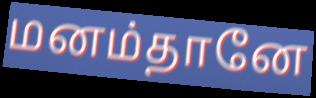
மனம்தானே